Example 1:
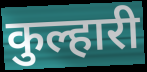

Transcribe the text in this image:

कुल्हारी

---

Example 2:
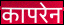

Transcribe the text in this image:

कापरेन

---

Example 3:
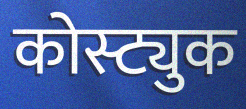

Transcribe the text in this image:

कोस्ट्युक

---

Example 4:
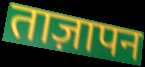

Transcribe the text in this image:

ताज़ापन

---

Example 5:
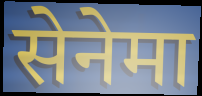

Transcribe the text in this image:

सेनेमा